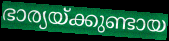
ഭാര്യയ്ക്കുണ്ടായ